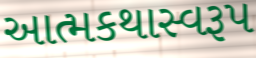
આત્મકથાસ્વરૂપ